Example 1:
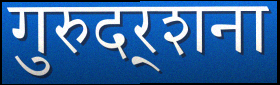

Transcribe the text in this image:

गुरुदर्शना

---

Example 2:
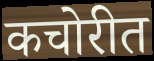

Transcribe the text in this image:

कचोरीत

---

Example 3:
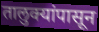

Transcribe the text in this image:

तालुक्यांपासून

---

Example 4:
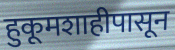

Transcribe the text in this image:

हुकूमशाहीपासून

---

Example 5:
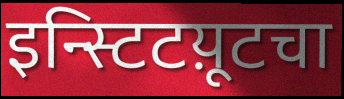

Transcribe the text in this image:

इन्स्टिटय़ूटचा